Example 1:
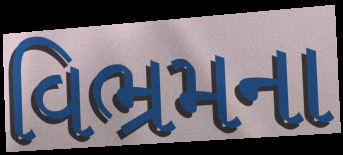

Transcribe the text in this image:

વિભ્રમના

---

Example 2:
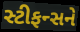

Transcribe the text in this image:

સ્ટીફન્સને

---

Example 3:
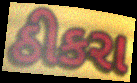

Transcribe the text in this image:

ઠીકરા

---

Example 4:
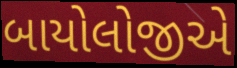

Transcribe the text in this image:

બાયોલોજીએ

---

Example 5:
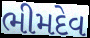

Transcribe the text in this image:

ભીમદેવ